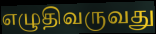
எழுதிவருவது